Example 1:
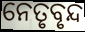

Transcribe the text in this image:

ନେତୃବୃନ୍ଦ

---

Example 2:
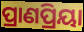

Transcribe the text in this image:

ପ୍ରାଣପ୍ରିୟା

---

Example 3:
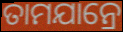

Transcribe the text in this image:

ତାମଯାନ୍ରେ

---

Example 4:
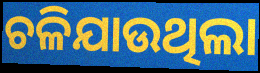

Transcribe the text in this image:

ଚଳିଯାଉଥିଲା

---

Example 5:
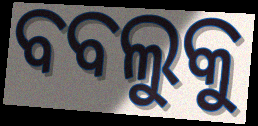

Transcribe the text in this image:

ବବଲୁକୁ